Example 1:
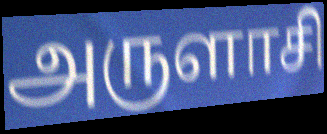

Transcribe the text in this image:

அருளாசி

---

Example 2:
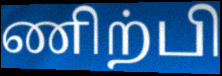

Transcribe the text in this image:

ணிற்பி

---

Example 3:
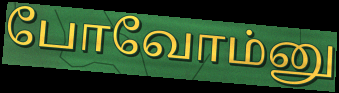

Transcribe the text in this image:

போவோம்னு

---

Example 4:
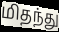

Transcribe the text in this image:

மிதந்து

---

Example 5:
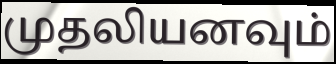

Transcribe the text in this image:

முதலியனவும்